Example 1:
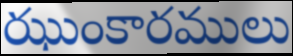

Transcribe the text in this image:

ఝుంకారములు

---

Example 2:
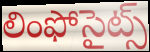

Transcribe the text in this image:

లింఫోసైట్స్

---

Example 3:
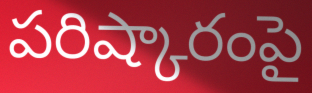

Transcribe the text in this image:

పరిష్కారంపై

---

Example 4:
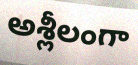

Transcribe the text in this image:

అశ్లీలంగా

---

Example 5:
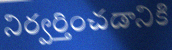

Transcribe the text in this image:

నిర్వర్తించడానికి